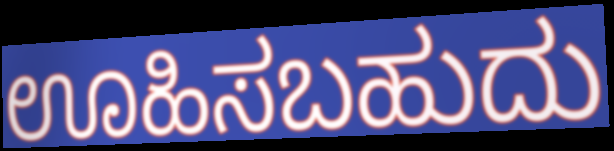
ಊಹಿಸಬಹುದು